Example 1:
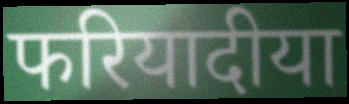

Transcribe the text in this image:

फरियादीया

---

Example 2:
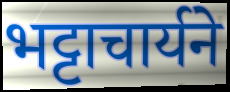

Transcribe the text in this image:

भट्टाचार्यने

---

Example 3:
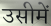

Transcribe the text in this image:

उसीमें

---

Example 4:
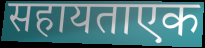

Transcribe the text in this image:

सहायताएक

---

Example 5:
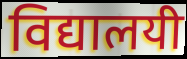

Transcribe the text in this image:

विद्यालयी